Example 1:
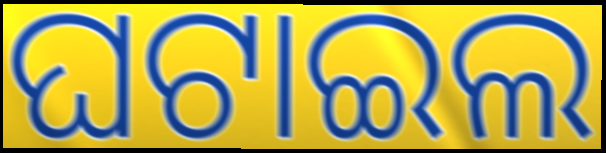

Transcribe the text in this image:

ଘଟାଇଲ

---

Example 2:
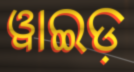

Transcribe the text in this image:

ୱାଇଡ଼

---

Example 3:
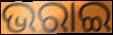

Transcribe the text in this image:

ଭରାଇ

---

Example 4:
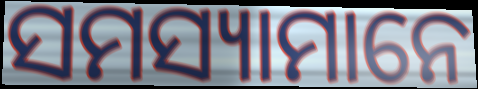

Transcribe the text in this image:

ସମସ୍ୟାମାନେ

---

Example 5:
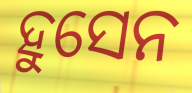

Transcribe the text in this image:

ହୁସେନ